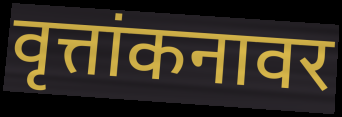
वृत्तांकनावर